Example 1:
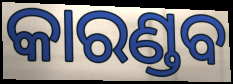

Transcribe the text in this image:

କାରଣ୍ଡବ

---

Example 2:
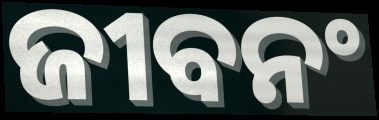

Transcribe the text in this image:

ଜୀବନଂ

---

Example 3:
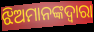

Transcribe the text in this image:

ଝିଅମାନଙ୍କଦ୍ଵାରା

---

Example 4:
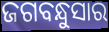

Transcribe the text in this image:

ଜଗବନ୍ଧୁସାର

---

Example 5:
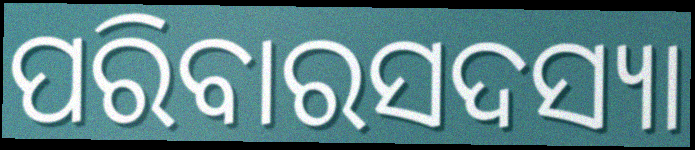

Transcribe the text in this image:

ପରିବାରସଦସ୍ୟା